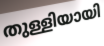
തുള്ളിയായി